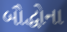
બૌદ્ધોના